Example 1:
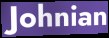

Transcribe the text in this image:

Johnian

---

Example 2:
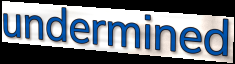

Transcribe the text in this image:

undermined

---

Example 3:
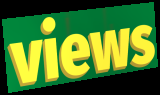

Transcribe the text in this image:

views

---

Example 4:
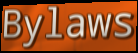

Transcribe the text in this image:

Bylaws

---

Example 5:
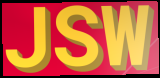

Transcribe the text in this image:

JSW